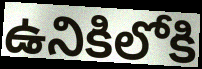
ఉనికిలోకి